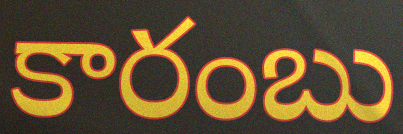
కారంబు